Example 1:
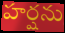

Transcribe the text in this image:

హర్షను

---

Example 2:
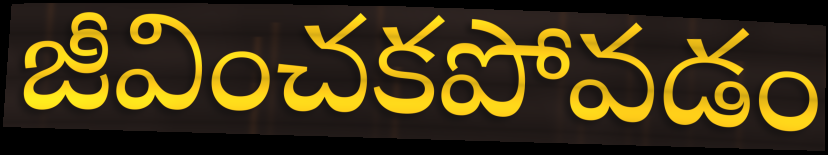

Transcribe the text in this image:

జీవించకపోవడం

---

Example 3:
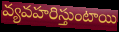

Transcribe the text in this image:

వ్యవహరిస్తుంటాయి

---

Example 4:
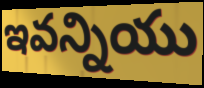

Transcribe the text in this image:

ఇవన్నియు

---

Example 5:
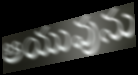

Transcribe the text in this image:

ఆయువును